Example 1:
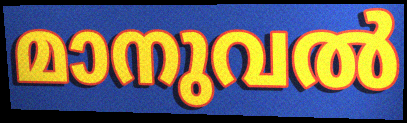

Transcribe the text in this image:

മാനുവൽ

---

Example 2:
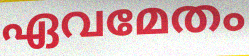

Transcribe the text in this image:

ഏവമേതം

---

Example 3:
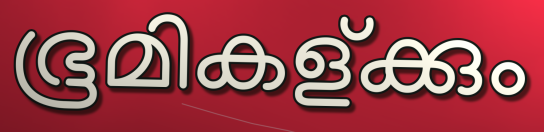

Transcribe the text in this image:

ഭൂമികള്ക്കും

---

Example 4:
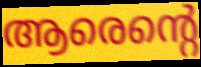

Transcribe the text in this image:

ആരെന്റെ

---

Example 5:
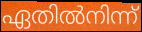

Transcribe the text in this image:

ഏതിൽനിന്ന്